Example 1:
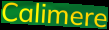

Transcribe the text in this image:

Calimere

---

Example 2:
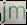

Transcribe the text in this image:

jm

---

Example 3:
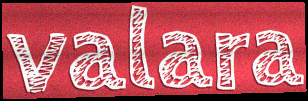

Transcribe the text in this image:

valara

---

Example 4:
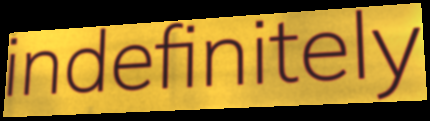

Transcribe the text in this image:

indefinitely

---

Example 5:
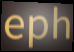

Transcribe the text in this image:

eph